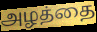
அழத்தை